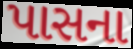
પાસના